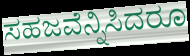
ಸಹಜವೆನ್ನಿಸಿದರೂ